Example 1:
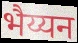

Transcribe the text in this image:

भैय्यन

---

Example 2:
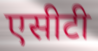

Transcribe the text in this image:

एसीटी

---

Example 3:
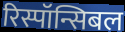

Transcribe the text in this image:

रिस्पॉन्सिबल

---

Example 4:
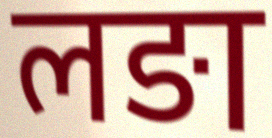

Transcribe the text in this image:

लङा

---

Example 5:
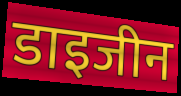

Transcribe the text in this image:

डाइजीन